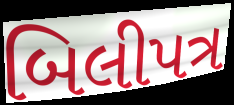
બિલીપત્ર